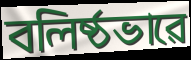
বলিষ্ঠভাৱে